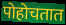
पोहोचतात